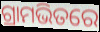
ଗ୍ରାମଭିତରେ